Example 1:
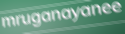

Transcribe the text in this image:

mruganayanee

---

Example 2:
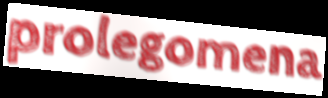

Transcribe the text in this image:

prolegomena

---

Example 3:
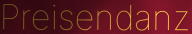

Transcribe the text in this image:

Preisendanz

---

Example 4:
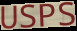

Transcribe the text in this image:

USPS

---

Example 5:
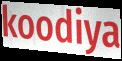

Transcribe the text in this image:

koodiya